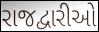
રાજદ્વારીઓ